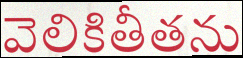
వెలికితీతను